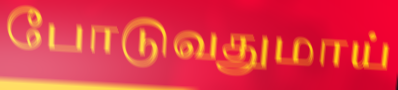
போடுவதுமாய்